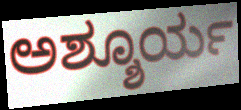
ಅಶ್ಶೂರ್ಯ